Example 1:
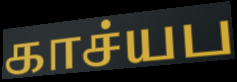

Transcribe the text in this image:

காச்யப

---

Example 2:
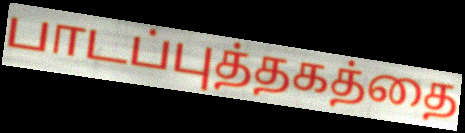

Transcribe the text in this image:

பாடப்புத்தகத்தை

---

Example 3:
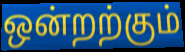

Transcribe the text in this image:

ஒன்றற்கும்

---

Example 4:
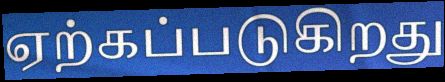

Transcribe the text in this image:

ஏற்கப்படுகிறது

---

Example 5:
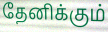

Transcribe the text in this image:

தேனிக்கும்